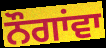
ਨੌਗਾਂਵਾ